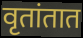
वृतांतात